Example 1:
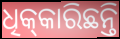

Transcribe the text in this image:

ଧିକ୍‌କାରିଛନ୍ତି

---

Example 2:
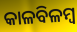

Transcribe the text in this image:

କାଳବିଳମ୍ବ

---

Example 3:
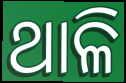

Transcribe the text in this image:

ଥାଳି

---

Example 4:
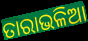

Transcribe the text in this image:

ତାରାଭଳିଆ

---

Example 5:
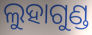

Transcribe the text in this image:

ଲୁହାଗୁଣ୍ଡ